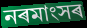
নৰমাংসৰ